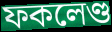
ফকলেণ্ড